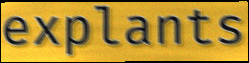
explants